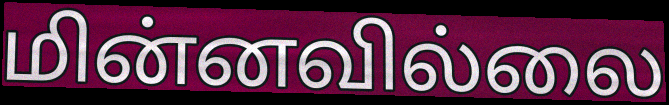
மின்னவில்லை